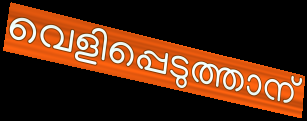
വെളിപ്പെടുത്താന്